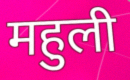
महुली